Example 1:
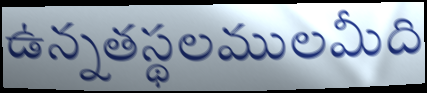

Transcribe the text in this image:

ఉన్నతస్థలములమీది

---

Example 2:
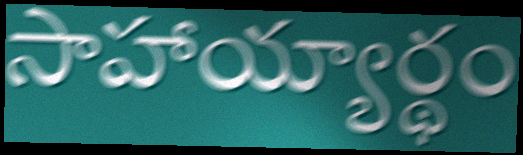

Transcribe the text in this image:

సాహాయ్యార్థం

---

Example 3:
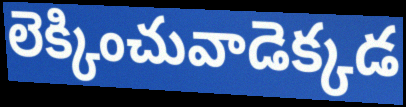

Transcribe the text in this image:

లెక్కించువాడెక్కడ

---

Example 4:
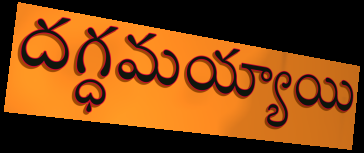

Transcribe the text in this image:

దగ్ధమయ్యాయి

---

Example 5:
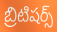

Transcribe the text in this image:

బ్రిటిషర్స్